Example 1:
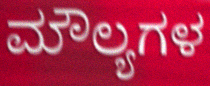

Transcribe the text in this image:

ಮೌಲ್ಯಗಳ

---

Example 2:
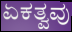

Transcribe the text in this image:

ಏಕತ್ವವು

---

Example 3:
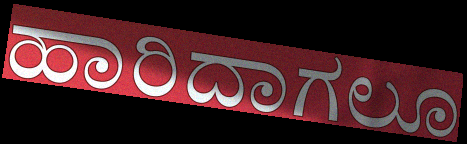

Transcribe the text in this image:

ಹಾರಿದಾಗಲೂ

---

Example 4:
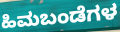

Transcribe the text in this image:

ಹಿಮಬಂಡೆಗಳ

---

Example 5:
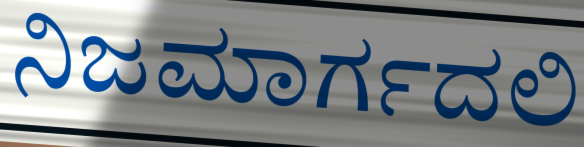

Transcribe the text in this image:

ನಿಜಮಾರ್ಗದಲಿ